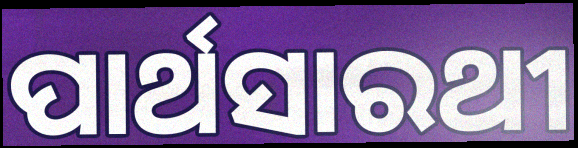
ପାର୍ଥସାରଥୀ